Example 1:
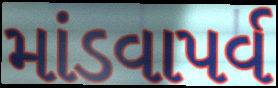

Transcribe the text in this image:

માંડવાપર્વ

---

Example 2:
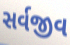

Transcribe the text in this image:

સર્વજીવ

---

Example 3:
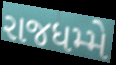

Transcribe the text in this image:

રાજધમ્મે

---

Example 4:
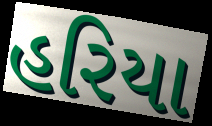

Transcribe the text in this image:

હરિયા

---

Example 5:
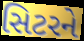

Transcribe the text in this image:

સિટરને